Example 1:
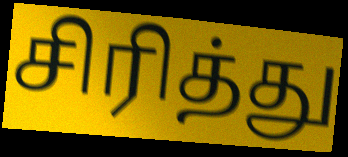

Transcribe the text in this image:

சிரித்து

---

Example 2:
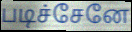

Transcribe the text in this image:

படிச்சேனே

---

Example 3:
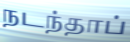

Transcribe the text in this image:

நடந்தாப்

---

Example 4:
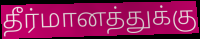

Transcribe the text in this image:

தீர்மானத்துக்கு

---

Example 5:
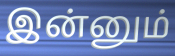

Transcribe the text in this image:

இன்னும்